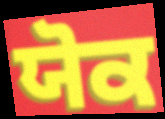
ਯੋਕ